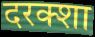
दरक्शा